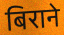
बिराने